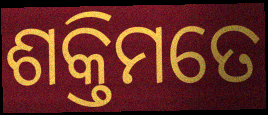
ଶକ୍ତିମତେ